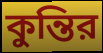
কুন্তির